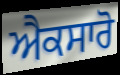
ਐਕਸਾਰੋ